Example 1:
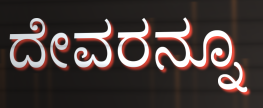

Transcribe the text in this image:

ದೇವರನ್ನೂ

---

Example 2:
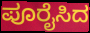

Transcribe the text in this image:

ಪೂರೈಸಿದ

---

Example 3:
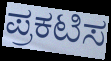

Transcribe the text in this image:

ಪ್ರಕಟಿಸ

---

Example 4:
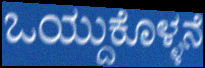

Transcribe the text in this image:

ಒಯ್ದುಕೊಳ್ಳನೆ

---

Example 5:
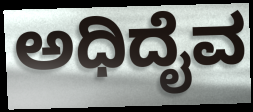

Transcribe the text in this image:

ಅಧಿದೈವ